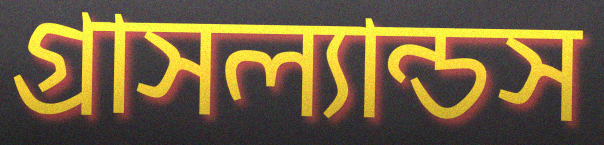
গ্রাসল্যান্ডস